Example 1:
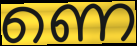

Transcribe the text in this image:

ണെ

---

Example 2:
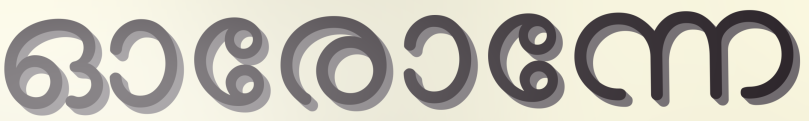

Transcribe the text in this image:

ഓരോന്നേ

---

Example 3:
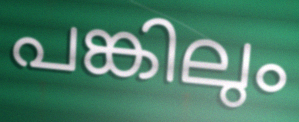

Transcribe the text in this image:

പങ്കിലും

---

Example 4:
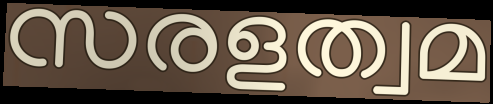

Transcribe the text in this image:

സരളത്വമ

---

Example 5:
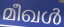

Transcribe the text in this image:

മീഖൾ